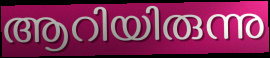
ആറിയിരുന്നു